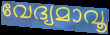
വേദ്യമാവൂ